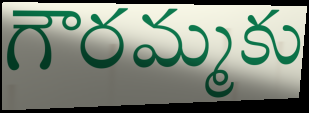
గౌరమ్మకు